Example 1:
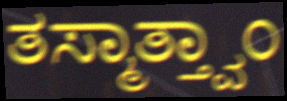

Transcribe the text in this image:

ತಸ್ಮಾತ್ತ್ವಾಂ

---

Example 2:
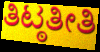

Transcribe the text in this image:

ತಿಟ್ಠತೀತಿ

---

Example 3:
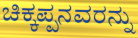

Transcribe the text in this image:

ಚಿಕ್ಕಪ್ಪನವರನ್ನು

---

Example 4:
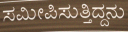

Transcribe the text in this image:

ಸಮೀಪಿಸುತ್ತಿದ್ದನು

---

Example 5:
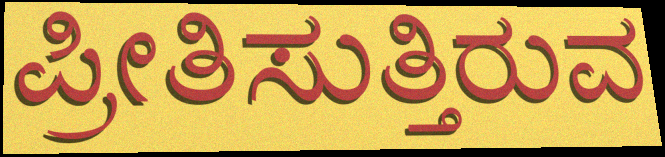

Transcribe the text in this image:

ಪ್ರೀತಿಸುತ್ತಿರುವ